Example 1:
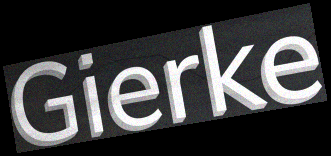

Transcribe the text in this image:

Gierke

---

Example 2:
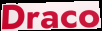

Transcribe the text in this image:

Draco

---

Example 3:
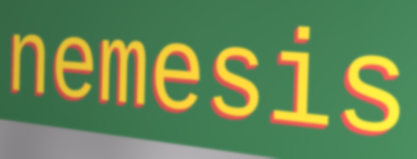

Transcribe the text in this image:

nemesis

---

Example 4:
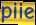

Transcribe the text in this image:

piie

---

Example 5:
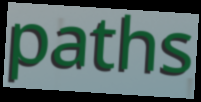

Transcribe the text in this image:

paths